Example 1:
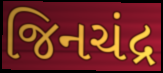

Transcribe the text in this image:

જિનચંદ્ર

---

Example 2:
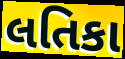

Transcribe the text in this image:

લતિકા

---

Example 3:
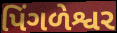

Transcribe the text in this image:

પિંગળેશ્વર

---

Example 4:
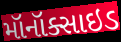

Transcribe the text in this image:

મૉનૉક્સાઇડ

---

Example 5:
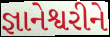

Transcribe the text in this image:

જ્ઞાનેશ્વરીને